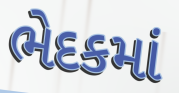
ભેદકમાં